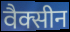
वैक्‍सीन